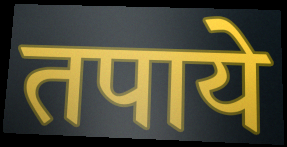
तपाये